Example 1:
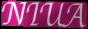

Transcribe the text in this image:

NIUA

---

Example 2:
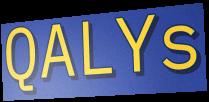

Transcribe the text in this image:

QALYs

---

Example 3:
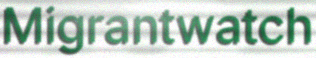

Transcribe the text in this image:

Migrantwatch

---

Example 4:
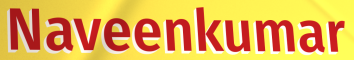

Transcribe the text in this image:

Naveenkumar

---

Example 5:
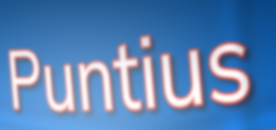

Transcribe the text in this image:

Puntius